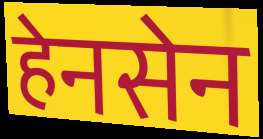
हेनसेन